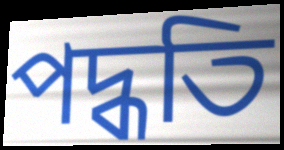
পদ্ধতি